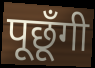
पूछूँगी